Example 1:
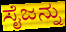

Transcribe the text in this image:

ಸೈಜನ್ನು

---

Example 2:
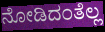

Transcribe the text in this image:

ನೋಡಿದಂತೆಲ್ಲ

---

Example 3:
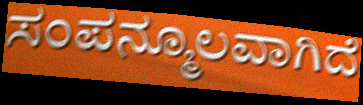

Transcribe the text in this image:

ಸಂಪನ್ಮೂಲವಾಗಿದೆ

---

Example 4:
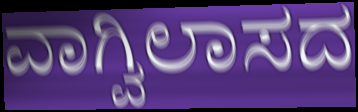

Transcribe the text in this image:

ವಾಗ್ವಿಲಾಸದ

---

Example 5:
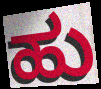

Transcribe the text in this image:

ಹು